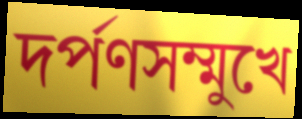
দর্পণসম্মুখে